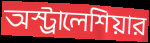
অস্ট্রালেশিয়ার